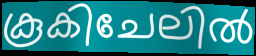
കൂകിചേലിൽ